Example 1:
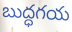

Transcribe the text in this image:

బుద్ధగయ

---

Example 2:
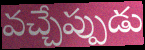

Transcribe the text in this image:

వచ్చేప్పుడు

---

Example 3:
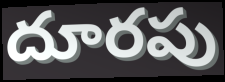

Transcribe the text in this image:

దూరపు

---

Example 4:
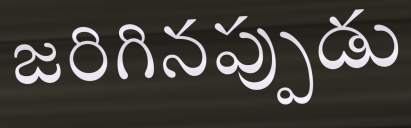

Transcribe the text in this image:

జరిగినప్పుడు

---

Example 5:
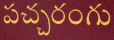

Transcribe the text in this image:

పచ్చరంగు